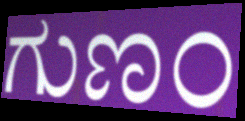
ಗುಣಂ